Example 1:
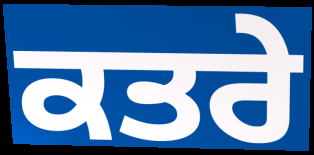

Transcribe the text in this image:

ਕਤਰੇ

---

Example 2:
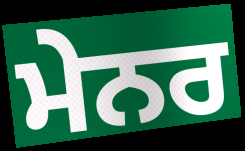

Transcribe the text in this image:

ਮੇਨਰ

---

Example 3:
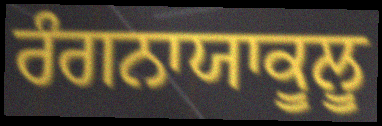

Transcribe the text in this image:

ਰੰਗਨਾਯਾਕੂਲੂ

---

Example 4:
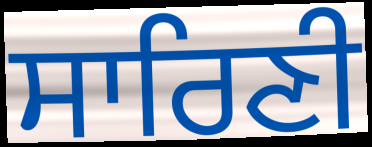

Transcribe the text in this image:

ਸਾਰਿਣੀ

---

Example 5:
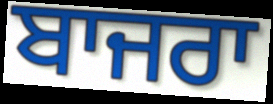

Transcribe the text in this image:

ਬਾਜਰਾ